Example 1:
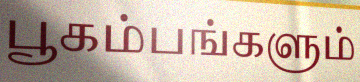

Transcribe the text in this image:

பூகம்பங்களும்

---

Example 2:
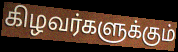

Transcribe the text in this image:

கிழவர்களுக்கும்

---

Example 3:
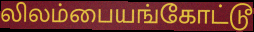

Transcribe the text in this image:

லிலம்பையங்கோட்டூ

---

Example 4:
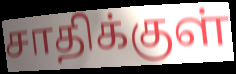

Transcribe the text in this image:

சாதிக்குள்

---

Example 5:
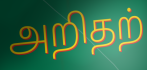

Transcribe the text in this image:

அறிதற்